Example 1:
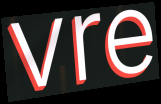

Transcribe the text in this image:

vre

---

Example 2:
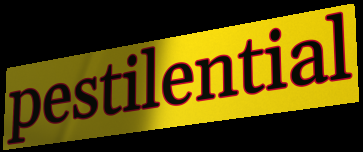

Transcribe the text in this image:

pestilential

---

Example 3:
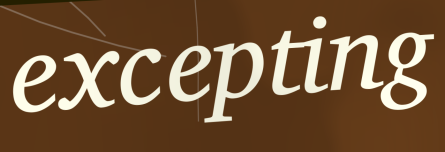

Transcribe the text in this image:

excepting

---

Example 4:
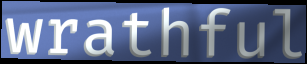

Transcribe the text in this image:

wrathful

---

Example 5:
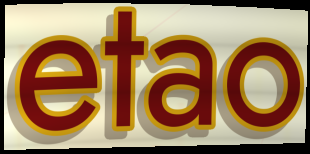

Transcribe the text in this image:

etao